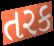
તરક